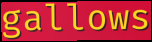
gallows